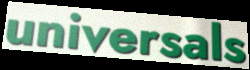
universals